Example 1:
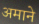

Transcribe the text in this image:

अमाने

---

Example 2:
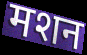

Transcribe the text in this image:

मशन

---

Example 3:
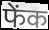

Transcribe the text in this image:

फेंक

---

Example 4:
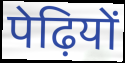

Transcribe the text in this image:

पेढ़ियों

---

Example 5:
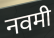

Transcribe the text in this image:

नवमी